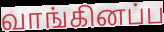
வாங்கினப்ப